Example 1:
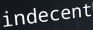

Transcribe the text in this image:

indecent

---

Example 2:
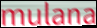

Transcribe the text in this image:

mulana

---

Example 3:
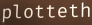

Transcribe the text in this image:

plotteth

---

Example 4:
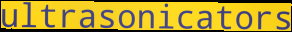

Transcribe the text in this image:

ultrasonicators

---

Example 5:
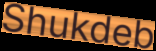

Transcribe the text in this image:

Shukdeb